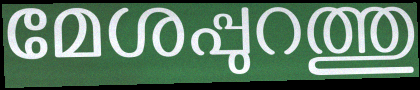
മേശപ്പുറത്തു